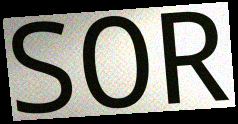
SOR